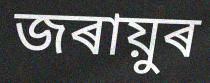
জৰায়ুৰ